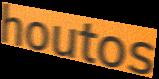
houtos